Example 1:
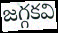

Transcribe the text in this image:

జగ్గకవి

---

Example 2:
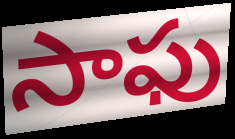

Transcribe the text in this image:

సాఫు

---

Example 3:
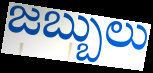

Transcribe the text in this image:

జబ్బులు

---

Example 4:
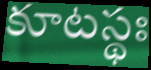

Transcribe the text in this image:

కూటస్థః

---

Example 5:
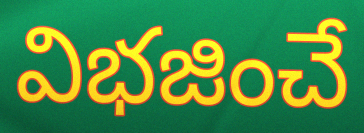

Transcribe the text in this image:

విభజించే